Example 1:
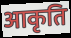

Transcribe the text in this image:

आकृति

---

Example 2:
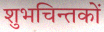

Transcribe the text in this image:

शुभचिन्तकों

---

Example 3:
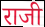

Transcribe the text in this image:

राजी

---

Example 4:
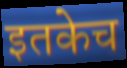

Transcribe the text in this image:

इतकेच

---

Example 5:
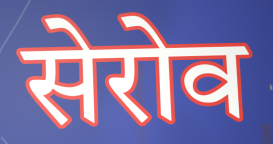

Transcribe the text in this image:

सेरोव